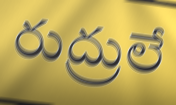
రుద్రులే